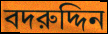
বদরুদ্দিন